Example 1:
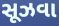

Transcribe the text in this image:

સૂઝવા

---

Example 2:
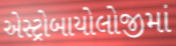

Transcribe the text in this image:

એસ્ટ્રોબાયોલોજીમાં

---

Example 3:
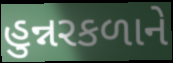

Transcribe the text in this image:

હુન્નરકળાને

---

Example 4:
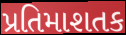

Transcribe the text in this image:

પ્રતિમાશતક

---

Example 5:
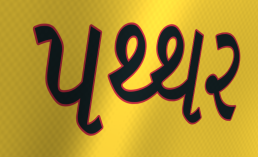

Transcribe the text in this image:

પથ્થર